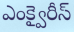
ఎంక్వైరీస్